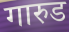
गारुड